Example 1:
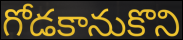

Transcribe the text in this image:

గోడకానుకొని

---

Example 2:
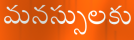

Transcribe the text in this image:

మనస్సులకు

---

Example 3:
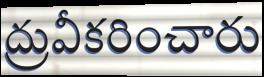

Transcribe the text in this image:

ద్రువీకరించారు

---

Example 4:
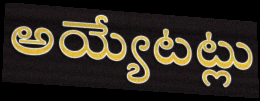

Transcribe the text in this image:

అయ్యేటట్లు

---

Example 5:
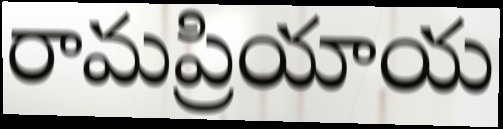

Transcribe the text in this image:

రామప్రియాయ